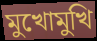
মুখোমুখি